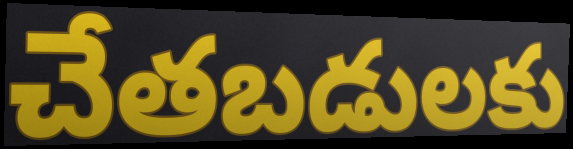
చేతబడులకు